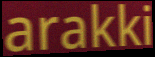
arakki